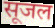
सूजल